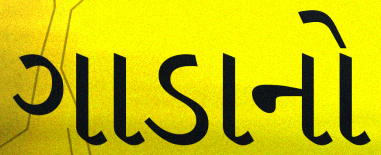
ગાડાનો